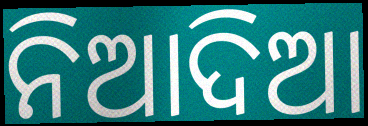
ନିଆଦିଆ